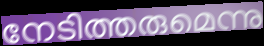
നേടിത്തരുമെന്നു